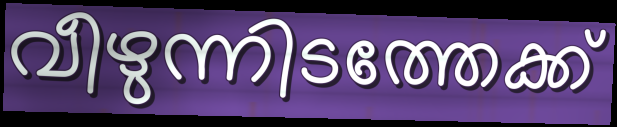
വീഴുന്നിടത്തേക്ക്